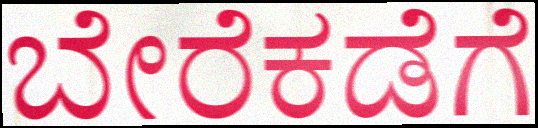
ಬೇರೆಕಡೆಗೆ